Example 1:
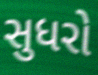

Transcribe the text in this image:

સુધરો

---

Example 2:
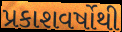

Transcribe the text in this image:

પ્રકાશવર્ષોથી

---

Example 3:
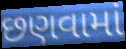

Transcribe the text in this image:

છણવામાં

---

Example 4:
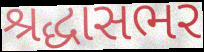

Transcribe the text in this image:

શ્રદ્ધાસભર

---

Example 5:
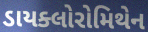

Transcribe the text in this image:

ડાયક્લોરોમિથેન